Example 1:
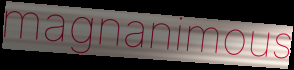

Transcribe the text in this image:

magnanimous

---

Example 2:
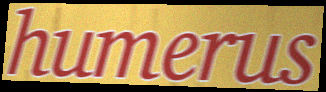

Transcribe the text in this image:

humerus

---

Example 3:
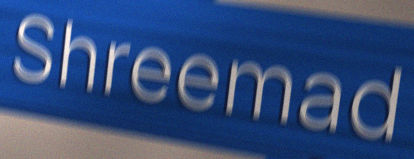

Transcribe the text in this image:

Shreemad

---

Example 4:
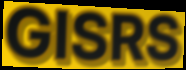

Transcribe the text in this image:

GISRS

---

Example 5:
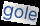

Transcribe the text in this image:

gole